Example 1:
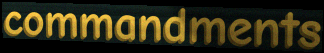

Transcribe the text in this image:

commandments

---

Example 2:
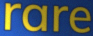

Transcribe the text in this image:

rare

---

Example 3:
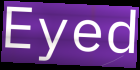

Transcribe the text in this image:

Eyed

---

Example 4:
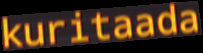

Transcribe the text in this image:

kuritaada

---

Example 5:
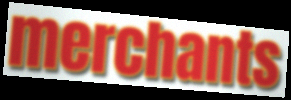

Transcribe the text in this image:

merchants